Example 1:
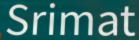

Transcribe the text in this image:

Srimat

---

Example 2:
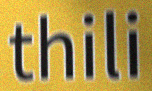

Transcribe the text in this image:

thili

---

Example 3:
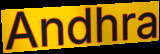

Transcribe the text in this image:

Andhra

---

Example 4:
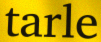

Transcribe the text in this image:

tarle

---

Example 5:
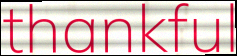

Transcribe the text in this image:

thankful